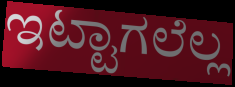
ಇಟ್ಟಾಗಲೆಲ್ಲ